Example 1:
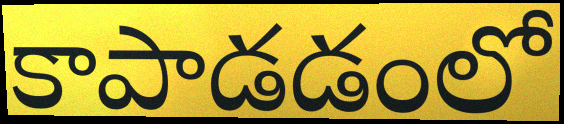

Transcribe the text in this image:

కాపాడడంలో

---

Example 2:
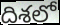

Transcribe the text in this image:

దిశలో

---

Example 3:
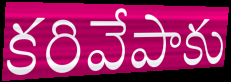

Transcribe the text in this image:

కరివేపాకు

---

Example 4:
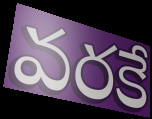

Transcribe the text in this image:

వరకే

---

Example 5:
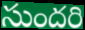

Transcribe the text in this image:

సుందరి